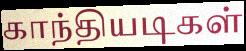
காந்தியடிகள்